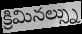
క్రిమినల్స్ను